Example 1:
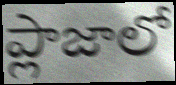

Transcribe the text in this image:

ప్లాజాలో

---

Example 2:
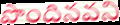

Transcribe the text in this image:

పొందినవని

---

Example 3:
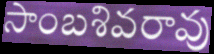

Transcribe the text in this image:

సాంబశివరావు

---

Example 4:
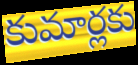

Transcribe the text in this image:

కుమార్లకు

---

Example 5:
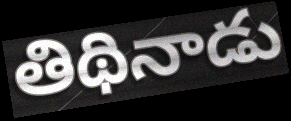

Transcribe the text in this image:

తిథినాడు